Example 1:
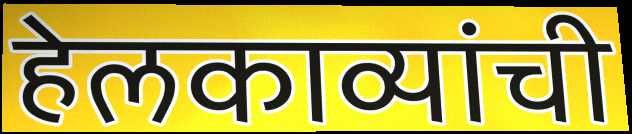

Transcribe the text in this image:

हेलकाव्यांची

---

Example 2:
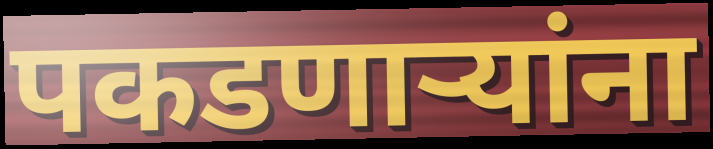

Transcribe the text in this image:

पकडणाऱ्यांना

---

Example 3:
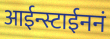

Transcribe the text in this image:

आईन्स्टाईननं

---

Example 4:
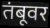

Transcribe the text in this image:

तंबूवर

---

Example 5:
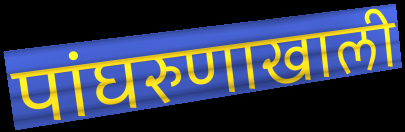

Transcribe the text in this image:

पांघरुणाखाली